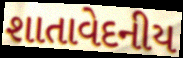
શાતાવેદનીય